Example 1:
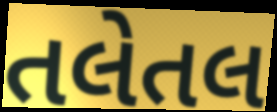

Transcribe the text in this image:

તલેતલ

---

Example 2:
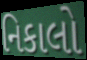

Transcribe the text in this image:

નિકાલો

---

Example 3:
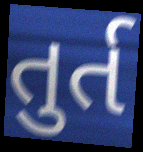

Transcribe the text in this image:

તુર્ત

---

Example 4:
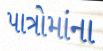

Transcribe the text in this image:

પાત્રોમાંના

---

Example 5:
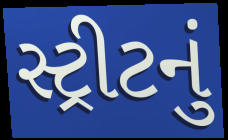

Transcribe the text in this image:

સ્ટ્રીટનું